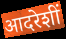
आदरेशीं